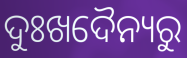
ଦୁଃଖଦୈନ୍ୟରୁ